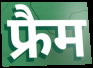
फ्रैम